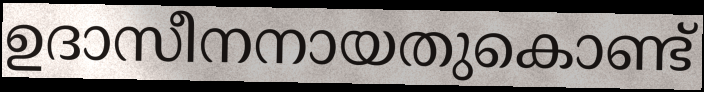
ഉദാസീനനായതുകൊണ്ട്